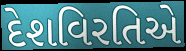
દેશવિરતિએ